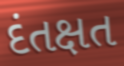
દંતક્ષત